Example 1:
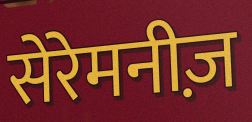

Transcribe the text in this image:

सेरेमनीज़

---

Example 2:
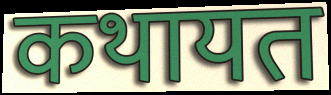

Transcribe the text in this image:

कथायत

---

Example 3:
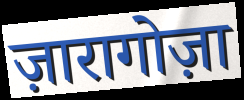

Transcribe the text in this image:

ज़ारागोज़ा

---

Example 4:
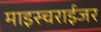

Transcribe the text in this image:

माइस्चराईजर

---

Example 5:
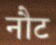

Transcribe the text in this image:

नौट